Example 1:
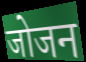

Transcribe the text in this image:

जोजन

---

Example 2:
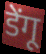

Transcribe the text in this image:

डेंगू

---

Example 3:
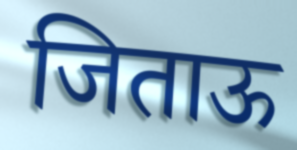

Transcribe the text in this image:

जिताऊ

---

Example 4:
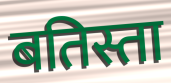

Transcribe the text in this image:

बतिस्ता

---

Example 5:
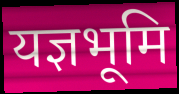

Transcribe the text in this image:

यज्ञभूमि